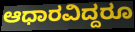
ಆಧಾರವಿದ್ದರೂ